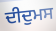
ਦੀਦੁਮਸ